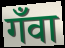
गँवा